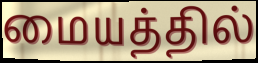
மையத்தில்